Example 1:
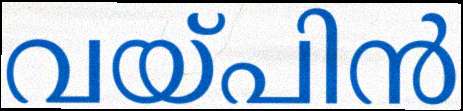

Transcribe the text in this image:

വയ്പിൻ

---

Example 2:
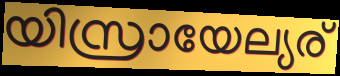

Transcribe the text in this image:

യിസ്രായേല്യര്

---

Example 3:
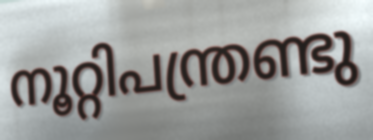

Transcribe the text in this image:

നൂറ്റിപന്ത്രണ്ടു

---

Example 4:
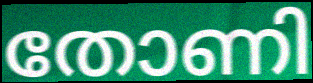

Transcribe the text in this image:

തോണി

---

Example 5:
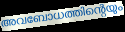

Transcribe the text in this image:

അവബോധത്തിന്റെയും